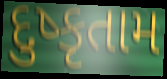
દુષ્કૃતામ